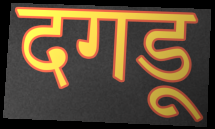
दगडू